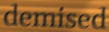
demised